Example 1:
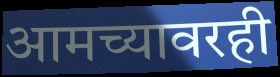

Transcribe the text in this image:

आमच्यावरही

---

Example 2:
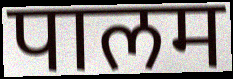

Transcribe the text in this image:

पालम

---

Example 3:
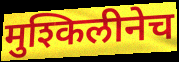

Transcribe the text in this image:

मुश्किलीनेच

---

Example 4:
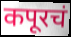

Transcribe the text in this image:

कपूरचं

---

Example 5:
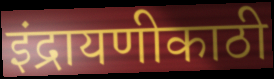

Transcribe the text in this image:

इंद्रायणीकाठी